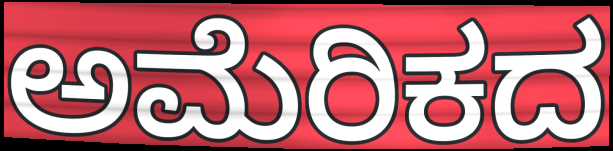
ಅಮೆರಿಕದ